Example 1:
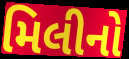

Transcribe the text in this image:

મિલીનો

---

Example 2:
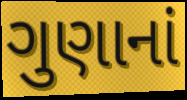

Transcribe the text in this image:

ગુણાનાં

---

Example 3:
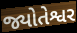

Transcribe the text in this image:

જ્યોતેશ્વર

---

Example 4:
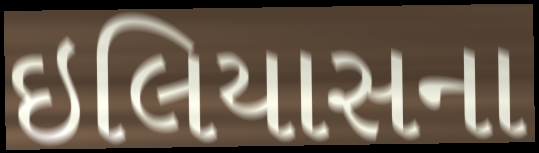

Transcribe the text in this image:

ઇલિયાસના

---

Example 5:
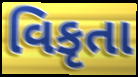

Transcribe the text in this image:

વિકૃતા